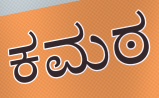
ಕಮಠ